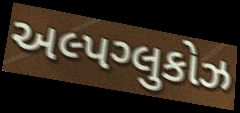
અલ્પગ્લુકોઝ